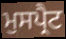
ਮੁਸਪ੍ਰੈਟ